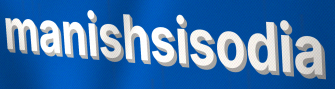
manishsisodia